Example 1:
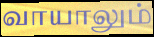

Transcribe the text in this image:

வாயாலும்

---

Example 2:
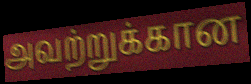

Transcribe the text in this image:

அவற்றுக்கான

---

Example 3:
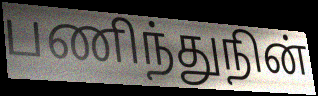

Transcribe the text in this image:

பணிந்துநின்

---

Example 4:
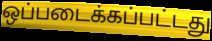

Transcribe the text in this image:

ஒப்படைக்கப்பட்டது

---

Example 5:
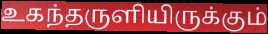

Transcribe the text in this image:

உகந்தருளியிருக்கும்